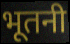
भूतनी